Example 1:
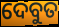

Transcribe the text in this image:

ଦେବୁତ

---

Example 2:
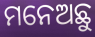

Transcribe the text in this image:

ମନେଅଛୁ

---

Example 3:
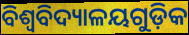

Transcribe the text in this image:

ବିଶ୍ଵବିଦ୍ୟାଳୟଗୁଡ଼ିକ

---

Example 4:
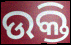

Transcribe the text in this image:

ଉକ୍ତି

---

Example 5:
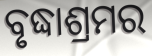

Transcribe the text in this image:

ବୃଦ୍ଧାଶ୍ରମର